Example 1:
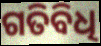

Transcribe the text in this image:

ଗତିବିଧି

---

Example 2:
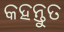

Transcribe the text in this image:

କହନ୍ତୁତ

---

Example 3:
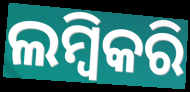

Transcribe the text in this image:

ଲମ୍ବିକରି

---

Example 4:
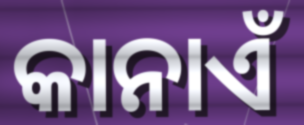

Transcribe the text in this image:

କାନାଏଁ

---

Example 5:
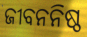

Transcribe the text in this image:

ଜୀବନନିଷ୍ଠ